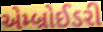
એમ્બ્રોઈડરી